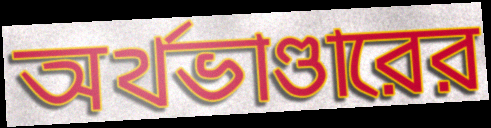
অর্থভাণ্ডারের